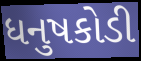
ધનુષકોડી